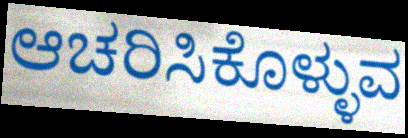
ಆಚರಿಸಿಕೊಳ್ಳುವ